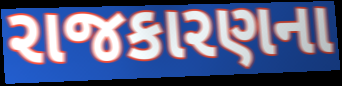
રાજકારણના